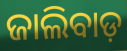
ଜାଲିବାଡ଼